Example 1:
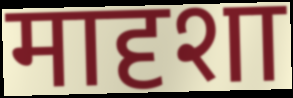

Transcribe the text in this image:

मादृशा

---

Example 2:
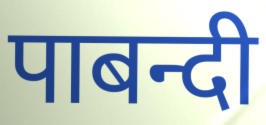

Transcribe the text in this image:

पाबन्दी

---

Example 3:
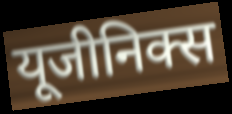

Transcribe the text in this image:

यूजीनिक्स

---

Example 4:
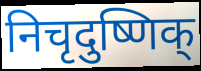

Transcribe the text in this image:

निचृदुष्णिक्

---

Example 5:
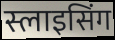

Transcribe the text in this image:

स्लाइसिंग